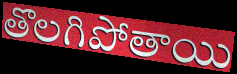
తొలగిపోతాయి